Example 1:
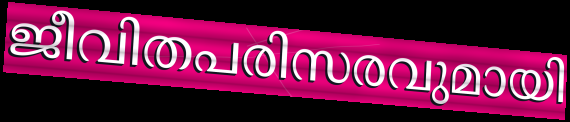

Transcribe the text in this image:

ജീവിതപരിസരവുമായി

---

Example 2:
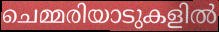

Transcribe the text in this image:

ചെമ്മരിയാടുകളിൽ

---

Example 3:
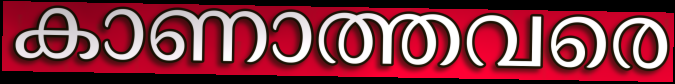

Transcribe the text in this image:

കാണാത്തവരെ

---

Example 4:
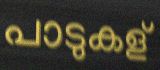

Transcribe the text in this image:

പാടുകള്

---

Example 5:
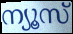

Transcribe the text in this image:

ന്യൂസ്